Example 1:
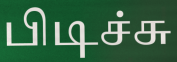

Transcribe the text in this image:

பிடிச்சு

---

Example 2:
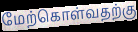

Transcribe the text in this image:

மேற்கொள்வதற்கு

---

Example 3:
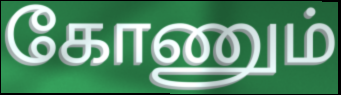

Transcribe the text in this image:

கோணும்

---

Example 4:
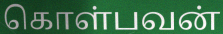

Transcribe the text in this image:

கொள்பவன்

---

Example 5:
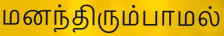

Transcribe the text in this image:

மனந்திரும்பாமல்